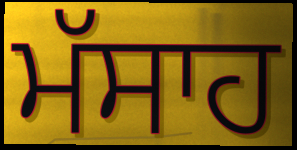
ਮੱਸਾਹ